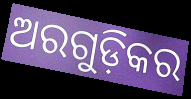
ଅରଗୁଡ଼ିକର